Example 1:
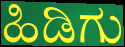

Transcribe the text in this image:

ಹಿಡಿಗು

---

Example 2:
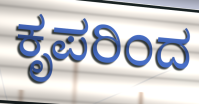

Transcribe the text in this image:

ಕೃಪರಿಂದ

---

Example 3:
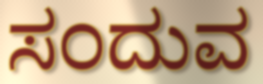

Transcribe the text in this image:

ಸಂದುವ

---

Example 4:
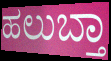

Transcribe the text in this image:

ಹಲುಬ್ತಾ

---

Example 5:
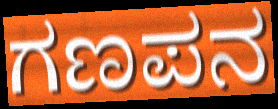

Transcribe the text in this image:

ಗಣಪನ